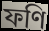
ফণি